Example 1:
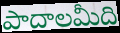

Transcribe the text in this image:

పాదాలమీది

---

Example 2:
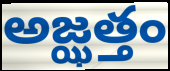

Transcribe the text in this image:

అజ్ఝత్తం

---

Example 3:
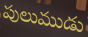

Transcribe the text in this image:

పులుముడు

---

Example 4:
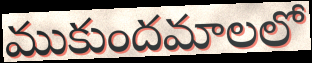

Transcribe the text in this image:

ముకుందమాలలో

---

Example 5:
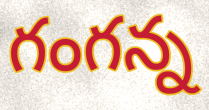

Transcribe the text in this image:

గంగన్న